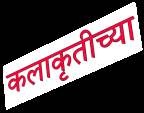
कलाकृतीच्या